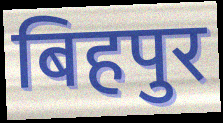
बिहपुर